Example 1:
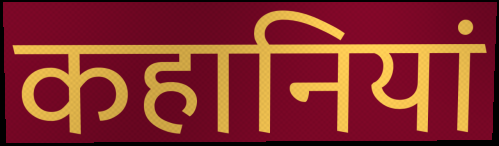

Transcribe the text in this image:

कहानियां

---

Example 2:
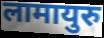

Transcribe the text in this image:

लामायुरु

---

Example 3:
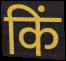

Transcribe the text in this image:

किं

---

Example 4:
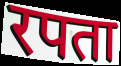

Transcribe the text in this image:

रपता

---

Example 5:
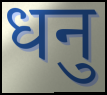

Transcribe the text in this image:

धनु